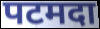
पटमदा